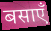
बसाएँ